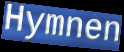
Hymnen